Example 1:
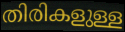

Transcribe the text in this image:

തിരികളുള്ള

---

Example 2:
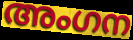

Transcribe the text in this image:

അംഗന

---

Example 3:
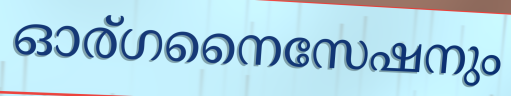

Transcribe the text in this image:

ഓര്ഗനൈസേഷനും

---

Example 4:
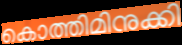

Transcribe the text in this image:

കൊത്തിമിനുക്കി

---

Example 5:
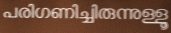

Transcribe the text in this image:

പരിഗണിച്ചിരുന്നുള്ളൂ